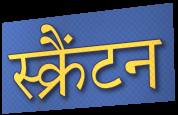
स्क्रैंटन